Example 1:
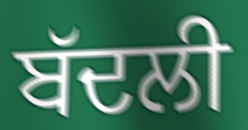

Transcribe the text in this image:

ਬੱਦਲੀ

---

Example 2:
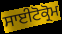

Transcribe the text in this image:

ਸਾਈਟੋਕ੍ਰੋਮ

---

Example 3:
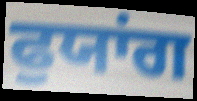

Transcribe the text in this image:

ਫੁਯਾਂਗ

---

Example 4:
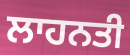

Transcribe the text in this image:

ਲਾਹਨਤੀ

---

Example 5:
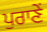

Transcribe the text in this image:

ਪੁਰਾਣੇਂ